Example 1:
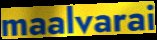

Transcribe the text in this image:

maalvarai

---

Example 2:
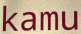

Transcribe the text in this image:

kamu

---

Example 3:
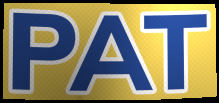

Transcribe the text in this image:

PAT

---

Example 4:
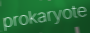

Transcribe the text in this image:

prokaryote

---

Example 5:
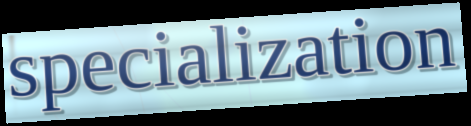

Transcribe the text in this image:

specialization